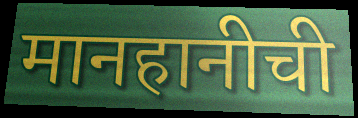
मानहानीची